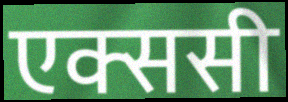
एक्ससी